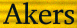
Akers